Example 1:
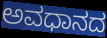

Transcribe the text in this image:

ಅವಧಾನದ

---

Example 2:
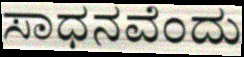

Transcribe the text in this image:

ಸಾಧನವೆಂದು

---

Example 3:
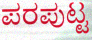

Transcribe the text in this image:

ಪರಪುಟ್ಟ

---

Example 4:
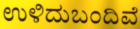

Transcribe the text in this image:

ಉಳಿದುಬಂದಿವೆ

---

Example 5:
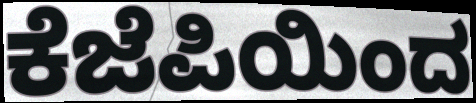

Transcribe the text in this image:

ಕೆಜೆಪಿಯಿಂದ